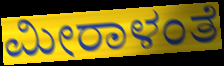
ಮೀರಾಳಂತೆ